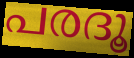
പരദൂ